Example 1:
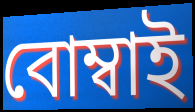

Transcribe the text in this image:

বোম্বাই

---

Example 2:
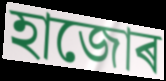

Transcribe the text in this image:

হাজোৰ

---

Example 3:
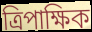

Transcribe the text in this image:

ত্ৰিপাক্ষিক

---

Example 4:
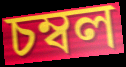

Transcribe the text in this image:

চম্বল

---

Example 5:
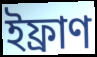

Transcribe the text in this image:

ইফ্ৰাণ